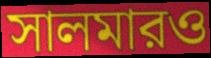
সালমারও